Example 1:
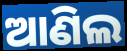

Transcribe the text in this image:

ଆଣିଲ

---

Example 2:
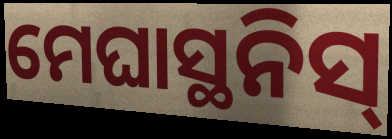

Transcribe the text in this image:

ମେଘାସ୍ଥନିସ୍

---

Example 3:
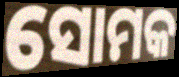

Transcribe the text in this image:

ସୋମକ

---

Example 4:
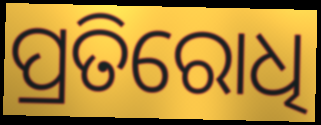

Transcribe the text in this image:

ପ୍ରତିରୋଧି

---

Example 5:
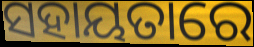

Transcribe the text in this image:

ସହାୟତାରେ